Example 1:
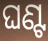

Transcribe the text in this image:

ଘଣ୍ଟ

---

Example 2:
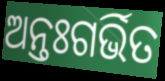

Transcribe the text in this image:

ଅନ୍ତଃଗର୍ଭିତ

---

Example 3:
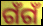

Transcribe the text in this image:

ଗଁଗଁ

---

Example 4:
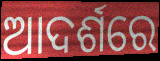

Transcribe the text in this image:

ଆଦର୍ଶରେ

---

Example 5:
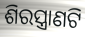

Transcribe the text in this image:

ଶିରସ୍ତ୍ରାଣଟି